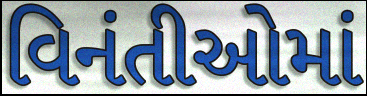
વિનંતીઓમાં